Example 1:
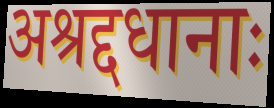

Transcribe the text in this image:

अश्रद्दधानाः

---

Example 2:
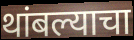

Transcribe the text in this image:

थांबल्याचा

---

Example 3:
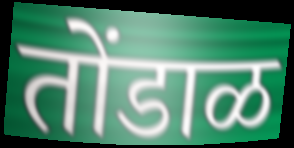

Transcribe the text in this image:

तोंडाळ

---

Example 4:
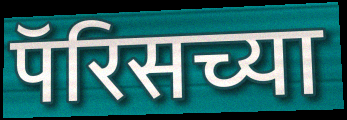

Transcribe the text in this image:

पॅरिसच्या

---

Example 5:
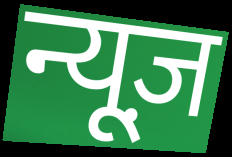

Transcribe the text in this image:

न्यूज़